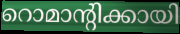
റൊമാന്റിക്കായി